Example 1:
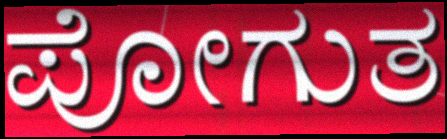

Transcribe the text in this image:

ಪೋಗುತ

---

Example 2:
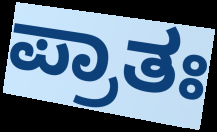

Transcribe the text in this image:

ಪ್ರಾತಃ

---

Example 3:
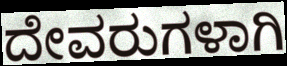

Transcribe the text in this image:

ದೇವರುಗಳಾಗಿ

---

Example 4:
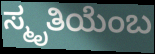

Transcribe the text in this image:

ಸ್ಮೃತಿಯೆಂಬ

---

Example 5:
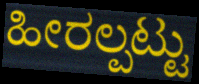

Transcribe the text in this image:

ಹೀರಲ್ಪಟ್ಟು